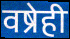
वष्रेही